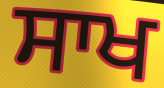
ਸਾਖ